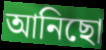
আনিছো